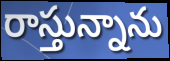
రాస్తున్నాను